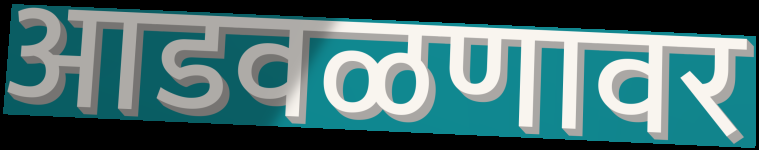
आडवळणावर